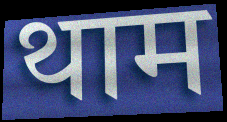
थाम